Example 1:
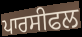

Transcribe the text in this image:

ਪਾਰਸੀਫਲ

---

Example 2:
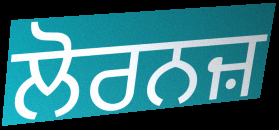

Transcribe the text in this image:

ਲੋਰਨਜ਼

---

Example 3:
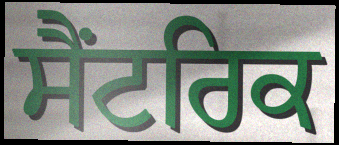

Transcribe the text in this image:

ਸੈਂਟਰਿਕ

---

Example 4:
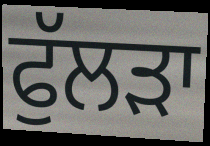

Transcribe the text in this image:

ਫੁੱਲੜਾ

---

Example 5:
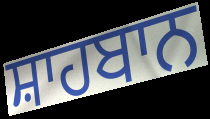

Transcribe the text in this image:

ਸ਼ਾਹਬਾਨ